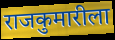
राजकुमारीला